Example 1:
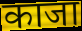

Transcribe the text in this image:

काजा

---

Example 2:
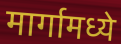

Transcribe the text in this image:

मार्गामध्ये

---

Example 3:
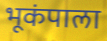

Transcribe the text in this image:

भूकंपाला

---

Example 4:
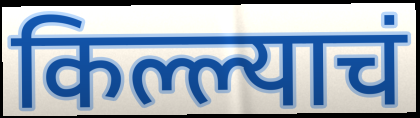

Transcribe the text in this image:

किल्ल्याचं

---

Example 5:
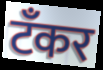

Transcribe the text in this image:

टँकर